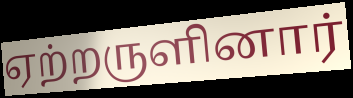
ஏற்றருளினார்